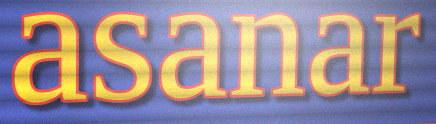
asanar